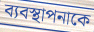
ব্যবস্থাপনাকে